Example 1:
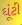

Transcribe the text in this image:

ઘૂંટી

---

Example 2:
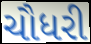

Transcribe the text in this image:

ચૌધરી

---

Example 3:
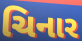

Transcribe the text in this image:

ચિનાર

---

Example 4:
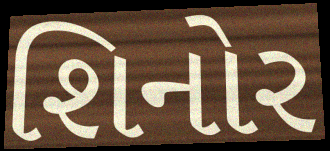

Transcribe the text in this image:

શિનોર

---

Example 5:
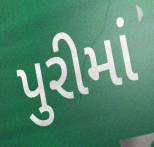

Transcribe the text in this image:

પુરીમાં